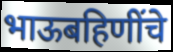
भाऊबहिणींचे